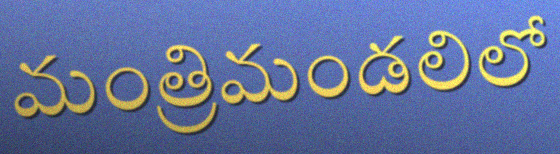
మంత్రిమండలిలో